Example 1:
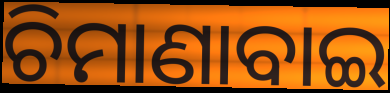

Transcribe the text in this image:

ଚିମାଣାବାଇ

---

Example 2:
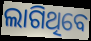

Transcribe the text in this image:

ଲାଗିଥିବେ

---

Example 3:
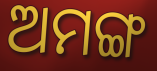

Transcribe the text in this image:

ଅମଙ୍ଗ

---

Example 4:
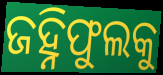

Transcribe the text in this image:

ଜହ୍ନିଫୁଲକୁ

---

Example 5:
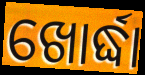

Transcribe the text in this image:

ଖୋର୍ଦ୍ଧା